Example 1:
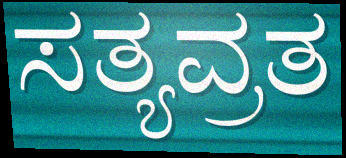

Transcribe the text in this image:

ಸತ್ಯವ್ರತ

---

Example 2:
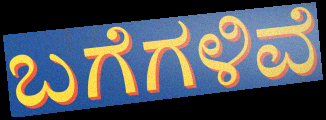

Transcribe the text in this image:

ಬಗೆಗಳಿವೆ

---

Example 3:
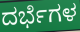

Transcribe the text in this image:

ದರ್ಭೆಗಳ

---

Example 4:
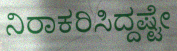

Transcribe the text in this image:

ನಿರಾಕರಿಸಿದ್ದಷ್ಟೇ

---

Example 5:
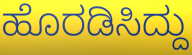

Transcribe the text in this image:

ಹೊರಡಿಸಿದ್ದು